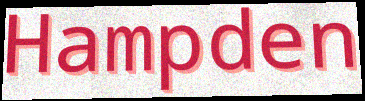
Hampden